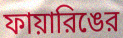
ফায়ারিঙের